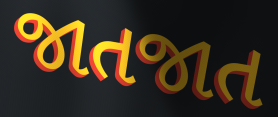
જાતજાત